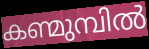
കണ്മുമ്പിൽ